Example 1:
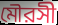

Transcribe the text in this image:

মৌরসী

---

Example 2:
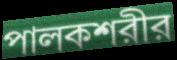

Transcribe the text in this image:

পালকশরীর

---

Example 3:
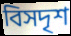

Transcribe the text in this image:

বিসদৃশ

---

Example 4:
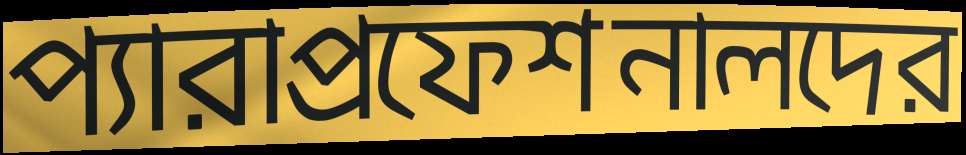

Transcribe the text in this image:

প্যারাপ্রফেশনালদের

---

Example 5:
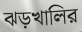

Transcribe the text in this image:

ঝড়খালির